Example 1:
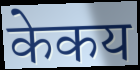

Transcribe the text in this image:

केकय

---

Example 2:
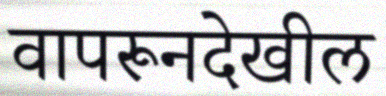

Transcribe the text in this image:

वापरूनदेखील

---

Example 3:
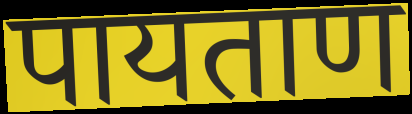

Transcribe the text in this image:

पायताण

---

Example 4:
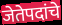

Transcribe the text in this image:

जेतेपदांचे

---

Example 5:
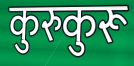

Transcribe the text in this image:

कुरुकुरू